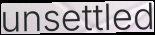
unsettled